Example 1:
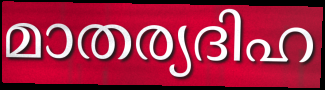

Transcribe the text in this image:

മാതര്യദിഹ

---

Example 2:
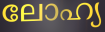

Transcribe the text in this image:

ലോഹ്യ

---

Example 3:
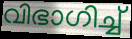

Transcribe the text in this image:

വിഭാഗിച്ച്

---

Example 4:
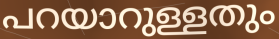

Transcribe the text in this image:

പറയാറുള്ളതും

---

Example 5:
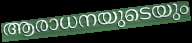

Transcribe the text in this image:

ആരാധനയുടെയും